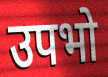
उपभो